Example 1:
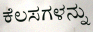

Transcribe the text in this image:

ಕೆಲಸಗಳನ್ನು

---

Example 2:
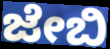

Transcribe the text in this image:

ಜೇಬಿ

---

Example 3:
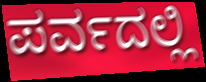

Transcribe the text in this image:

ಪರ್ವದಲ್ಲಿ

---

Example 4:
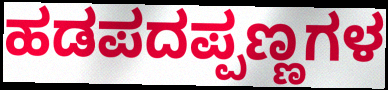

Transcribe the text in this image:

ಹಡಪದಪ್ಪಣ್ಣಗಳ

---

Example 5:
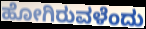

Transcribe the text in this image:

ಹೋಗಿರುವಳೆಂದು